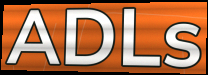
ADLs